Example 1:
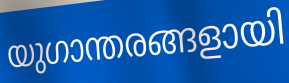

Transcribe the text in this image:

യുഗാന്തരങ്ങളായി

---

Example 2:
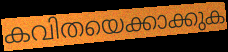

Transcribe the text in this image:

കവിതയെക്കാക്കുക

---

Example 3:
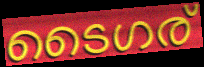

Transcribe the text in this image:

ടൈഗര്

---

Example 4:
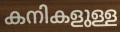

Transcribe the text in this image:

കനികളുള്ള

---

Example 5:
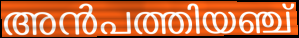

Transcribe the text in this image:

അൻപത്തിയഞ്ച്